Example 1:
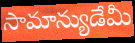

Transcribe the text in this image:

సామాన్యుడేమీ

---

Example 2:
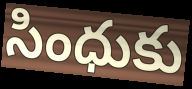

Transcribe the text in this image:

సింధుకు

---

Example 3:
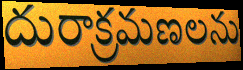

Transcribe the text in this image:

దురాక్రమణలను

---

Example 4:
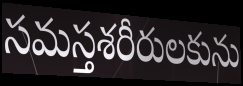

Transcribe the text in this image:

సమస్తశరీరులకును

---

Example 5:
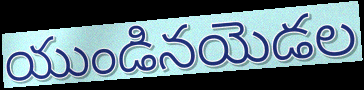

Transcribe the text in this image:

యుండినయెడల